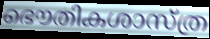
ഭൌതികശാസ്ത്ര